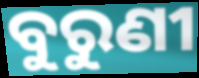
ବୁରୁଣୀ